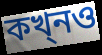
কখ্নও